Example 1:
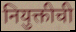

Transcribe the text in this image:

नियुक्तीची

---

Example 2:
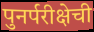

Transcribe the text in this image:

पुनर्परीक्षेची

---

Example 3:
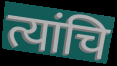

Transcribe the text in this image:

त्यांचि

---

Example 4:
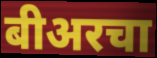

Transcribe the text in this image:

बीअरचा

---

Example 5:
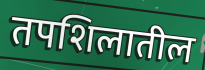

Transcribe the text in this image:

तपशिलातील